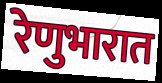
रेणुभारात